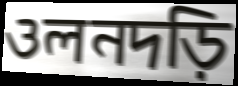
ওলনদড়ি